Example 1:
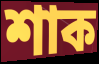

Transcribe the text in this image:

শাক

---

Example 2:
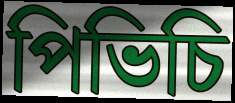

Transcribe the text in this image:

পিভিচি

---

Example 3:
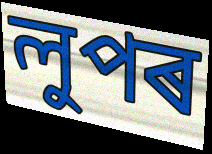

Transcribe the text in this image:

লুপৰ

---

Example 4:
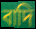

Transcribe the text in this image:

বাদি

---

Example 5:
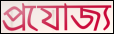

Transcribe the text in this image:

প্ৰযোজ্য